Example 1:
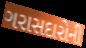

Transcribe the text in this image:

ગરાસદારોની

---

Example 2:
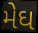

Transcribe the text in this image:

મેઘ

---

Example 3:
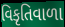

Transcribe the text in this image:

વિકૃતિવાળા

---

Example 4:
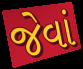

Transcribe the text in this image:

જેવાં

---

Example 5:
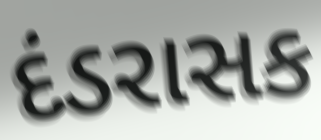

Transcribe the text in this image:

દંડરાસક